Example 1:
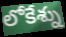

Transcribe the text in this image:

లోకేశ్ను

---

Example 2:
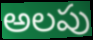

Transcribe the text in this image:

అలపు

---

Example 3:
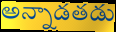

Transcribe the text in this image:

అన్నాడతడు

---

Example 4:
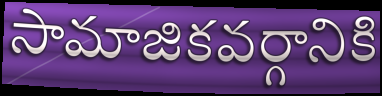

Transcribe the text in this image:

సామాజికవర్గానికి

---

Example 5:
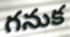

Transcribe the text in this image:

గనుక